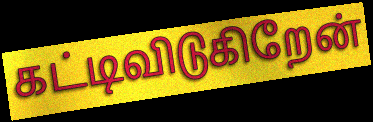
கட்டிவிடுகிறேன்